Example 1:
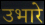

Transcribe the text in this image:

उभारे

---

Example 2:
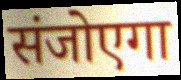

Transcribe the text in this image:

संजोएगा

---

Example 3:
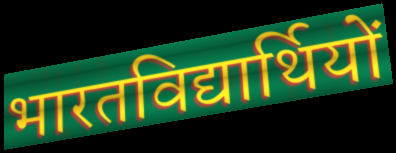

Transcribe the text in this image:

भारतविद्यार्थियों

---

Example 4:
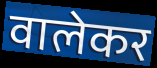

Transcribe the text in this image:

वालेकर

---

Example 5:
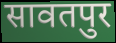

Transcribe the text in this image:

सावतपुर